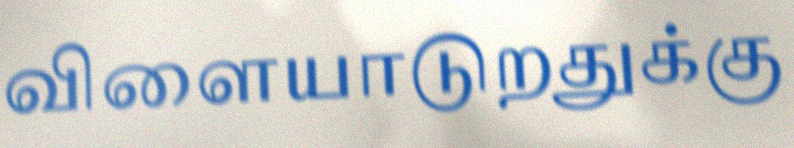
விளையாடுறதுக்கு